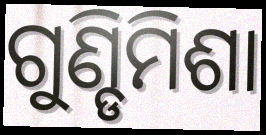
ଗୁଣ୍ଡିମିଶା